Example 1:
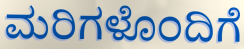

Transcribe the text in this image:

ಮರಿಗಳೊಂದಿಗೆ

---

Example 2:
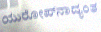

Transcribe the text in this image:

ಯುರೋಪ್‌ನಾದ್ಯಂತ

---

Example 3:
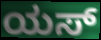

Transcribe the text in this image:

ಯಸ್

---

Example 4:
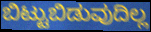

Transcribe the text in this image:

ಬಿಟ್ಟುಬಿಡುವುದಿಲ್ಲ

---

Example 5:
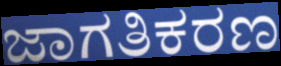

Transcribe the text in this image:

ಜಾಗತಿಕರಣ